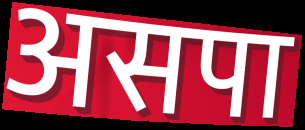
असपा